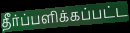
தீர்ப்பளிக்கப்பட்ட